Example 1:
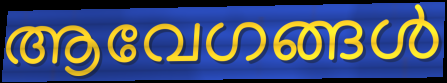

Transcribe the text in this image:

ആവേഗങ്ങൾ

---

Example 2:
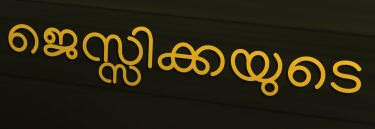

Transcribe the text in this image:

ജെസ്സിക്കയുടെ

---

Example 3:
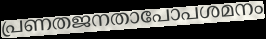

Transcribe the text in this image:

പ്രണതജനതാപോപശമനം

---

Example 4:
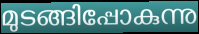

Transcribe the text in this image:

മുടങ്ങിപ്പോകുന്നു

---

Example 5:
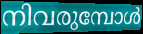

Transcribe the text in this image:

നിവരുമ്പോൾ